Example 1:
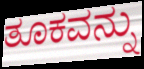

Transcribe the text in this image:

ತೂಕವನ್ನು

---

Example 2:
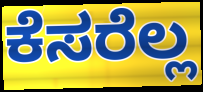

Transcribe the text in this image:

ಕೆಸರೆಲ್ಲ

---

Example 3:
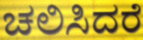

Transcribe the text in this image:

ಚಲಿಸಿದರೆ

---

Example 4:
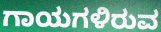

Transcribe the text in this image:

ಗಾಯಗಳಿರುವ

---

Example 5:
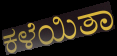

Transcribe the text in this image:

ಕಳೆಯಿತಾ